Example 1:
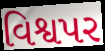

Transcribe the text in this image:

વિશ્વપર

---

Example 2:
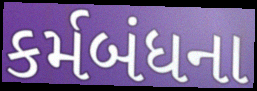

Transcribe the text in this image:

કર્મબંધના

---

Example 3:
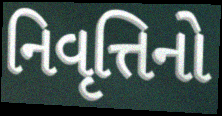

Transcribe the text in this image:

નિવૃત્તિનો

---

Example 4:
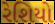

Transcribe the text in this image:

રેશિયો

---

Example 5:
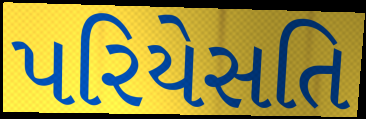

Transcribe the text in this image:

પરિયેસતિ